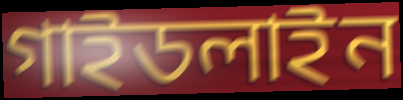
গাইডলাইন